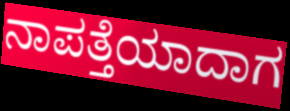
ನಾಪತ್ತೆಯಾದಾಗ